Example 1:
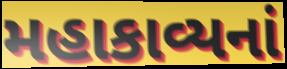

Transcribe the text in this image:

મહાકાવ્યનાં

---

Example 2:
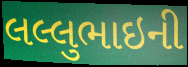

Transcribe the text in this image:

લલ્લુભાઇની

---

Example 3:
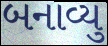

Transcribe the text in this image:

બનાવ્યુ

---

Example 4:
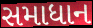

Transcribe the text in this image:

સમાધાન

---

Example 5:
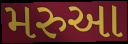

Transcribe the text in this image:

મરુઆ